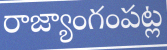
రాజ్యాంగంపట్ల